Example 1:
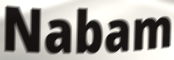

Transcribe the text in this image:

Nabam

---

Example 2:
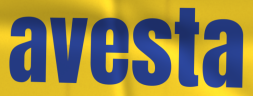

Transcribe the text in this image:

avesta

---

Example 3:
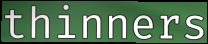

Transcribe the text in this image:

thinners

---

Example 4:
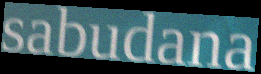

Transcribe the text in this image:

sabudana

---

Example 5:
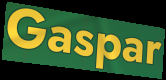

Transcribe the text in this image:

Gaspar